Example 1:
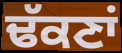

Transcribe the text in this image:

ਢੱਕਣਾਂ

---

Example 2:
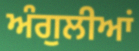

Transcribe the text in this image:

ਅੰਗੁਲੀਆਂ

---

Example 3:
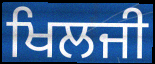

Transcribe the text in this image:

ਖਿਲਜੀ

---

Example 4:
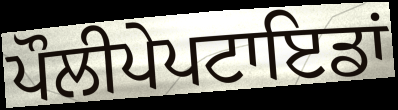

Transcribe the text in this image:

ਪੌਲੀਪੇਪਟਾਇਡਾਂ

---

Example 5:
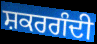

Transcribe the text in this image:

ਸ਼ਕਰਗੰਦੀ